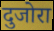
दुजोरा